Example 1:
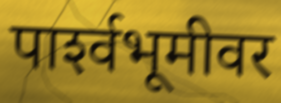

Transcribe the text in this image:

पार्श्‍वभूमीवर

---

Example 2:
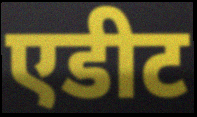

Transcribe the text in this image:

एडीट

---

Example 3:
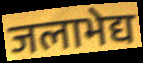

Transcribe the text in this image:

जलाभेद्य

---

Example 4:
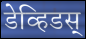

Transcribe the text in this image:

डेव्हिडस्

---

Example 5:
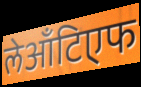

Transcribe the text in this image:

लेआँटिएफ